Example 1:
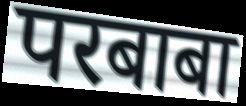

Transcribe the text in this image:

परबाबा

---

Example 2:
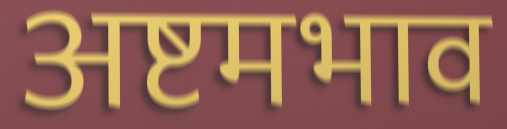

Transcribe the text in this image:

अष्टमभाव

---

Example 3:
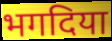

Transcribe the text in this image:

भगदिया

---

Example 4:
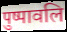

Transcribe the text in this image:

पुष्पावलि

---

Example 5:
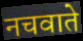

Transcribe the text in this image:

नचवाते